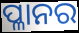
ପ୍ଳାନର